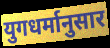
युगधर्मानुसार